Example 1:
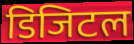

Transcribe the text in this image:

डिजिटल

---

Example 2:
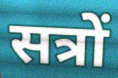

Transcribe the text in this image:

सत्रों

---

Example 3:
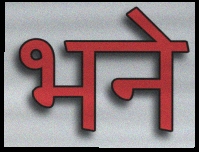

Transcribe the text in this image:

भने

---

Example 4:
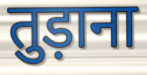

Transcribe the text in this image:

तुड़ाना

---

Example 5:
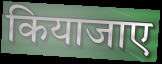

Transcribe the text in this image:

कियाजाए